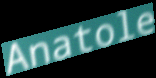
Anatole